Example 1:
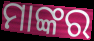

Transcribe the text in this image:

ମାଙ୍କର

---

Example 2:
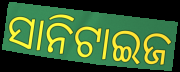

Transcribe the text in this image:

ସାନିଟାଇଜ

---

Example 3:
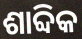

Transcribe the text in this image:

ଶାବ୍ଦିକ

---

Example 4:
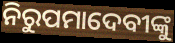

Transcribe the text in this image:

ନିରୁପମାଦେବୀଙ୍କୁ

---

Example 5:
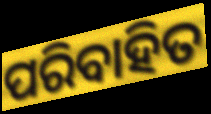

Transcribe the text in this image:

ପରିବାହିତ